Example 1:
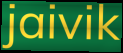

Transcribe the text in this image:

jaivik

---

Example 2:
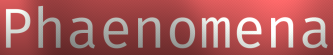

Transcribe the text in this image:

Phaenomena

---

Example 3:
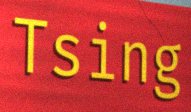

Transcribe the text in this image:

Tsing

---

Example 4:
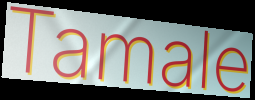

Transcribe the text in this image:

Tamale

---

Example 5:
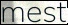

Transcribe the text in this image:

mest